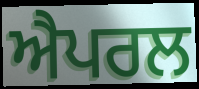
ਐਪਰਲ